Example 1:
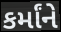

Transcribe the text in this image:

કર્માંને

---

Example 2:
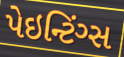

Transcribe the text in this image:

પેઇન્ટિંગ્સ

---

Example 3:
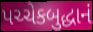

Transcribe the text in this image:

પચ્ચેકબુદ્ધાનં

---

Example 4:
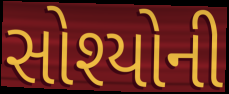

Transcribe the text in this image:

સોશ્યોની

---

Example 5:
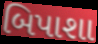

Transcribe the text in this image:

બિપાશા